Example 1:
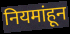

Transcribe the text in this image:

नियमांहून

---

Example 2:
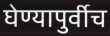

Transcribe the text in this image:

घेण्यापुर्वीच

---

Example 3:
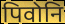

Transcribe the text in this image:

पिवोनि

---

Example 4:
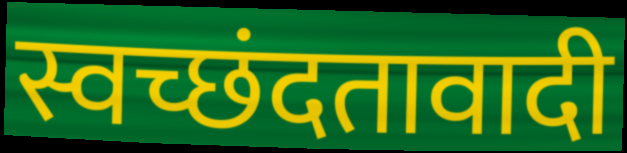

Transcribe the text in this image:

स्वच्छंदतावादी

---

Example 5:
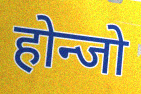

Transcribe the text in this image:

होन्जो